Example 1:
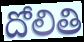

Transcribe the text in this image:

దోలితి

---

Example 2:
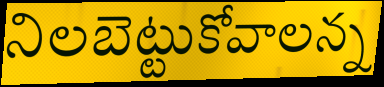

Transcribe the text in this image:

నిలబెట్టుకోవాలన్న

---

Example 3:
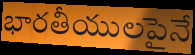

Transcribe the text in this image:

భారతీయులపైనే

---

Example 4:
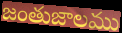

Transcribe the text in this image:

జంతుజాలము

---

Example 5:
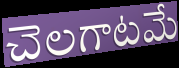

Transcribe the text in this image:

చెలగాటమే